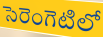
సెరెంగెటిలో